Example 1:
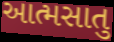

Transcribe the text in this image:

આત્મસાતુ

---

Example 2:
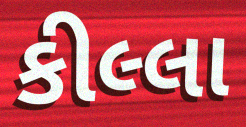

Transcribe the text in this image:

કીલ્લા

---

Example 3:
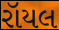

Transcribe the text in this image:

રૉયલ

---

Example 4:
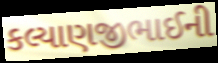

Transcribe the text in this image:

કલ્યાણજીભાઈની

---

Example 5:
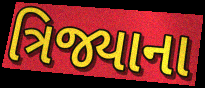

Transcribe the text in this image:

ત્રિજ્યાના